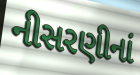
નીસરણીનાં